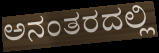
ಅನಂತರದಲ್ಲಿ